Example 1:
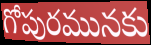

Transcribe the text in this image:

గోపురమునకు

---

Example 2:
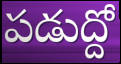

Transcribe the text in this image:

పడుద్దో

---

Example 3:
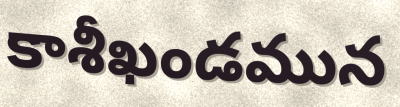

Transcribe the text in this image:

కాశీఖండమున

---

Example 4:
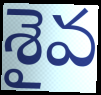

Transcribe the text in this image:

శైవ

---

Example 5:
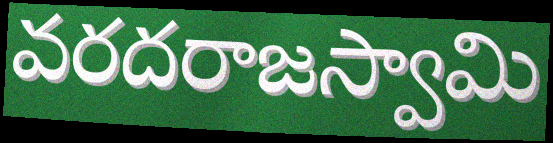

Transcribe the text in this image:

వరదరాజస్వామి